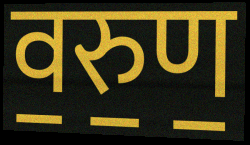
व॒रु॒ण॒